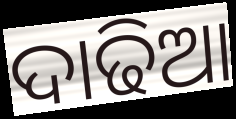
ଦାଢିଆ